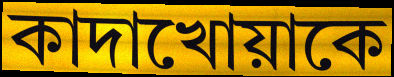
কাদাখোয়াকে